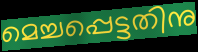
മെച്ചപ്പെട്ടതിനു